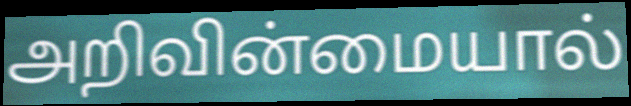
அறிவின்மையால்